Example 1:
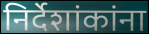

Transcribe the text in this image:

निर्देशांकांना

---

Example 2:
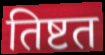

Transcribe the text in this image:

तिष्टत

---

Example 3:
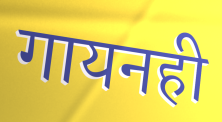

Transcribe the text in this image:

गायनही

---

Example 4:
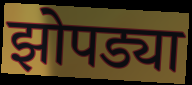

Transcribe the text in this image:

झोपड्या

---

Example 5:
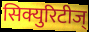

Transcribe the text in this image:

सिक्युरिटीज्